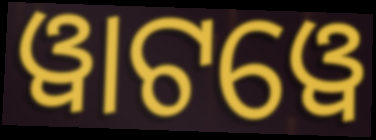
ୱାଟୱେ